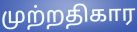
முற்றதிகார